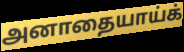
அனாதையாய்க்